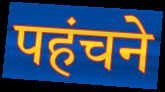
पहंचने